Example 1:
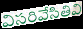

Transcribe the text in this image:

విసరివేసితివి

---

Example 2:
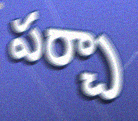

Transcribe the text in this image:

పర్చా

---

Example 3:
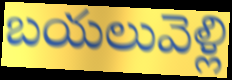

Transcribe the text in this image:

బయలువెళ్లి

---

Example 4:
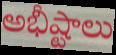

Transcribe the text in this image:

అభీష్టాలు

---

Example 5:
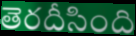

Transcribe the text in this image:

తెరదీసింది